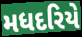
મધદરિયે